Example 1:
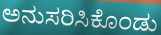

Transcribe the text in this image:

ಅನುಸರಿಸಿಕೊಂಡು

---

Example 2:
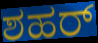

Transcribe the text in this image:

ಶಹರ್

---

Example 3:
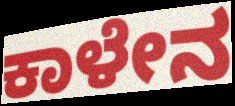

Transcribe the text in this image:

ಕಾಳೇನ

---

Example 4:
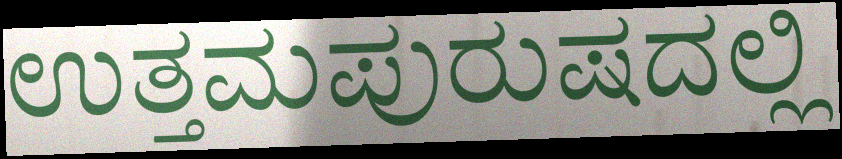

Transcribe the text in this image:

ಉತ್ತಮಪುರುಷದಲ್ಲಿ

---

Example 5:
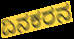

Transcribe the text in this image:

ದಿನಕರನ